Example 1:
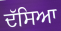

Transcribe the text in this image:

ਦੱਸਿਆ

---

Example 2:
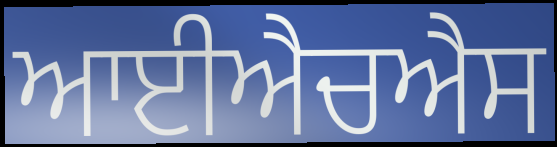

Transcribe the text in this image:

ਆਈਐਚਐਸ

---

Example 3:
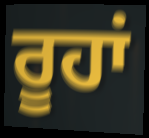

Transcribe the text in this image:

ਰੂਹਾਂ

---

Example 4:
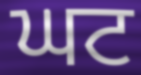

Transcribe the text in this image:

ਘਟ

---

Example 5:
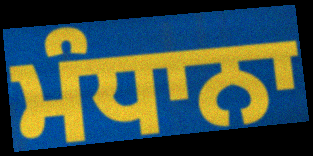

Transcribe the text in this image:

ਮੰਧਾਨਾ